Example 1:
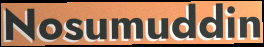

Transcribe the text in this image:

Nosumuddin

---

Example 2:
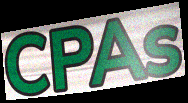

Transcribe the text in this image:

CPAs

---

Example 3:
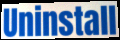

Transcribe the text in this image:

Uninstall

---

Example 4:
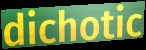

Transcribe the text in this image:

dichotic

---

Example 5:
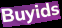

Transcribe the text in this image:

Buyids